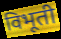
विभूती